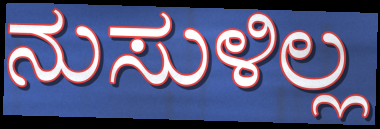
ನುಸುಳಿಲ್ಲ